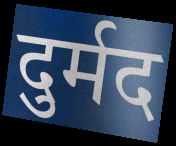
दुर्मद